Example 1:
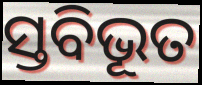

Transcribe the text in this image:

ସ୍ତବିଭୂତ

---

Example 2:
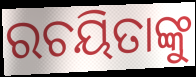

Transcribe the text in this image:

ରଚୟିତାଙ୍କୁ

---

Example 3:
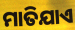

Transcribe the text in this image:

ମାତିଯାଏ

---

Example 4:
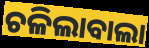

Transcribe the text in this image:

ଚଳିଲାବାଲା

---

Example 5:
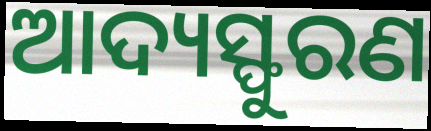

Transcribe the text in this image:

ଆଦ୍ୟସ୍ଫୁରଣ